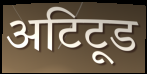
अटिटूड